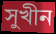
সুখীন